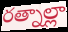
రత్నాల్లా